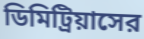
ডিমিট্রিয়াসের